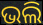
ଭଲି